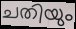
ചതിയും